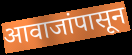
आवाजांपासून